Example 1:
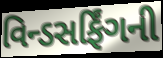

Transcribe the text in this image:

વિન્ડસર્ફિંગની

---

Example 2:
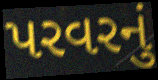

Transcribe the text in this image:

પરવરનું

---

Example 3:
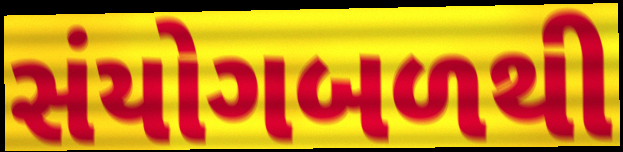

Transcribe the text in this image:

સંયોગબળથી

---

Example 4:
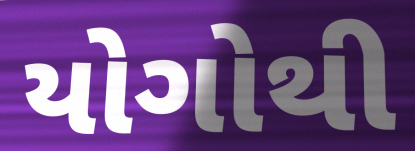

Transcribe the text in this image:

યોગોથી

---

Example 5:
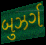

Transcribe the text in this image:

બુઝર્ગ